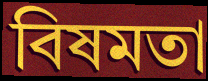
বিষমতা